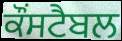
ਕੌਂਸਟੈਬਲ